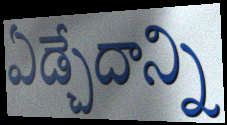
ఏడ్చేదాన్ని